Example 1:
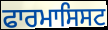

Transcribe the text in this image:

ਫਾਰਮਾਸਿਸਟ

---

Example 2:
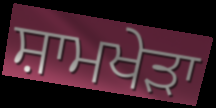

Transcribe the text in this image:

ਸ਼ਾਮਖੇੜਾ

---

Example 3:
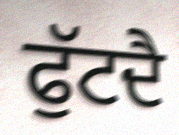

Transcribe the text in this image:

ਫੁੱਟਦੈ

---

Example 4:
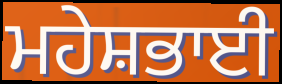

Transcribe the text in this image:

ਮਹੇਸ਼ਭਾਈ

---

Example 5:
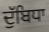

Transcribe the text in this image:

ਦੁੱਬਿਧਾ